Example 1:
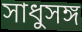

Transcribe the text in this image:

সাধুসঙ্গ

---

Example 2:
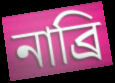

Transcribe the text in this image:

নাব্রি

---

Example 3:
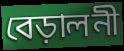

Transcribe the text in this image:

বেড়ালনী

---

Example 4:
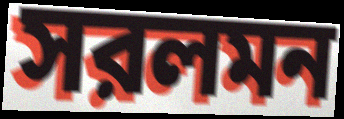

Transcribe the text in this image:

সরলমন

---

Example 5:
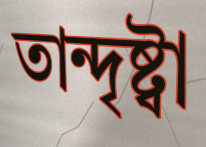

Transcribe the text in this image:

তান্দৃষ্ট্বা